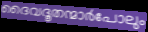
ദൈവദൂതന്മാർപോലും